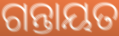
ଗନ୍ତାୟତ